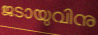
ജടായുവിനു